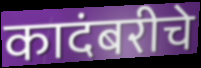
कादंबरीचे